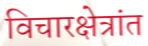
विचारक्षेत्रांत